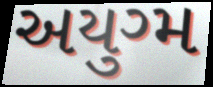
અયુગ્મ